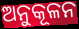
ଅନୁକୂଳନ